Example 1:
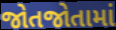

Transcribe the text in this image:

જોતજોતામાં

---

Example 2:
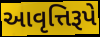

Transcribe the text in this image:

આવૃત્તિરૂપે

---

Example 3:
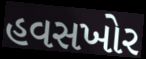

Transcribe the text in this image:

હવસખોર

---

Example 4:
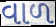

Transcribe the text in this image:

વાળ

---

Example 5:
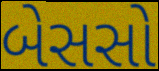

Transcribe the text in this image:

બેસસો